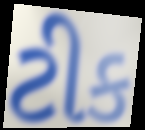
ટીક